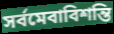
সর্বমেবাবিশন্তি